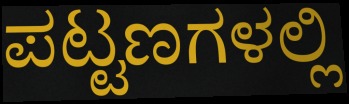
ಪಟ್ಟಣಗಳಲ್ಲಿ